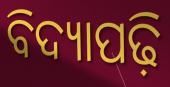
ବିଦ୍ୟାପଢ଼ି